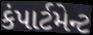
કંપાર્ટમેન્ટ